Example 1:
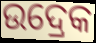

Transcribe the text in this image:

ଉଦ୍ରେକ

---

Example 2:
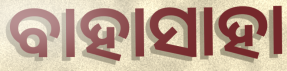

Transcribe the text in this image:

ବାହାସାହା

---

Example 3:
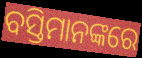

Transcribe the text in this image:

ବସ୍ତିମାନଙ୍କରେ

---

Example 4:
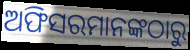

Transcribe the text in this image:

ଅଫିସରମାନଙ୍କଠାରୁ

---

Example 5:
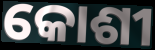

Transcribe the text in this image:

କୋଶୀ